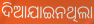
ଦିଆଯାଇନଥିଲା